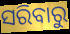
ସରିବାରୁ